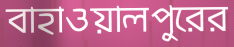
বাহাওয়ালপুরের